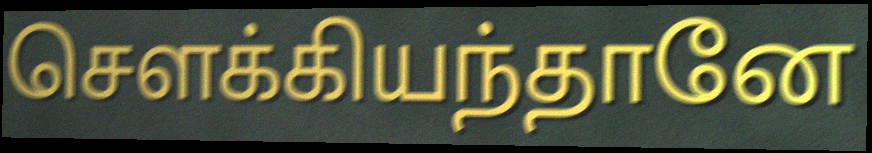
சௌக்கியந்தானே